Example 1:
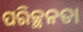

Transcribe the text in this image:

ପରିଚ୍ଛନତା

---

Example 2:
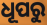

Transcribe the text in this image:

ଧୂପରୁ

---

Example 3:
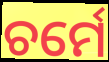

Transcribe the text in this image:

ଚର୍ମେ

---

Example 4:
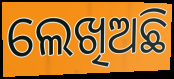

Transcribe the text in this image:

ଲେଖିଅଛି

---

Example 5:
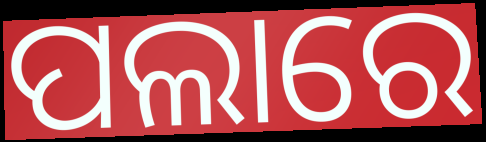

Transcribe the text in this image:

ପଲାରେ